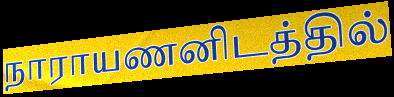
நாராயணனிடத்தில்